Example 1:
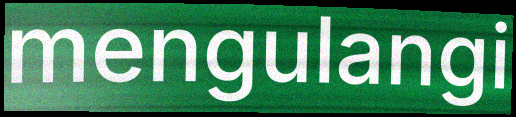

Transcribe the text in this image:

mengulangi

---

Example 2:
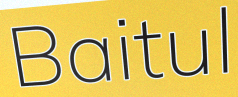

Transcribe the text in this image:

Baitul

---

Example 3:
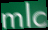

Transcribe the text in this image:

mlc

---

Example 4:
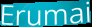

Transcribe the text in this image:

Erumai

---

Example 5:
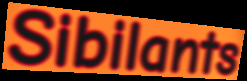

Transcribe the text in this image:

Sibilants